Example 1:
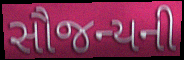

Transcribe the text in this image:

સૌજન્યની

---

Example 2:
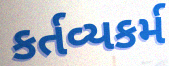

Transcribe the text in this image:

કર્તવ્યકર્મ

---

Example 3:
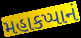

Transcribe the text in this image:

મહાકપ્પાનં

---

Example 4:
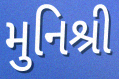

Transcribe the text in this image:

મુનિશ્રી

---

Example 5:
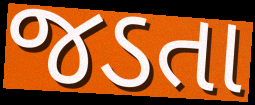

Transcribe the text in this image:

જડતા